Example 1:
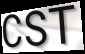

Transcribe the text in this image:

CST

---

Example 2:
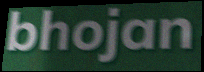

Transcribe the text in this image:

bhojan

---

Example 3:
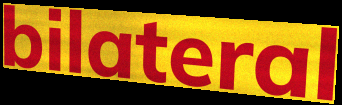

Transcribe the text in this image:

bilateral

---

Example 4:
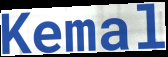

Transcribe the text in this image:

Kemal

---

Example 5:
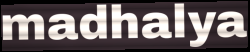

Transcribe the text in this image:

madhalya